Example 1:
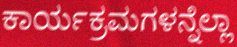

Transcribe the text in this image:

ಕಾರ್ಯಕ್ರಮಗಳನ್ನೆಲ್ಲಾ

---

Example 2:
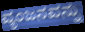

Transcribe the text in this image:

ವ್ಯಂಜನವನ್ನು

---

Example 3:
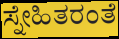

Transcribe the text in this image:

ಸ್ನೇಹಿತರಂತೆ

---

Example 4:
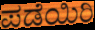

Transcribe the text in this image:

ಪಡೆಯಿರಿ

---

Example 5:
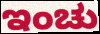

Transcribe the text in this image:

ಇಂಚು